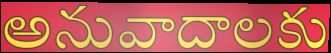
అనువాదాలకు